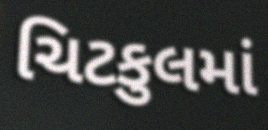
ચિટકુલમાં